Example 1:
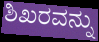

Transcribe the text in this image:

ಶಿಖರವನ್ನು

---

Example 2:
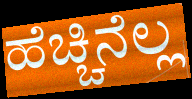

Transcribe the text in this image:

ಹೆಚ್ಚಿನೆಲ್ಲ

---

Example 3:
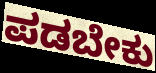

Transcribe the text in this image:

ಪಡಬೇಕು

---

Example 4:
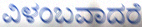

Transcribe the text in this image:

ವಿಳಂಬವಾದರೆ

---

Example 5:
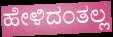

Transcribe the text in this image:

ಹೇಳಿದಂತಲ್ಲ